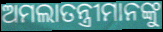
ଅମଲାତନ୍ତ୍ରୀମାନଙ୍କୁ